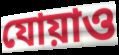
যোয়াও